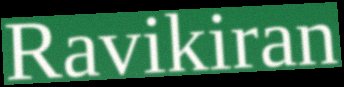
Ravikiran